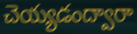
చెయ్యడంద్వారా